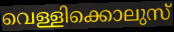
വെള്ളിക്കൊലുസ്